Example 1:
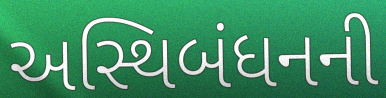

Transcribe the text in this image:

અસ્થિબંધનની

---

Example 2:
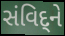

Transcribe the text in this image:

સંવિદ્‌ને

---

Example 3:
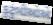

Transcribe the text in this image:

કુટુંબીઓએ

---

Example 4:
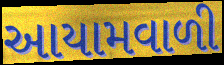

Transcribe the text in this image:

આયામવાળી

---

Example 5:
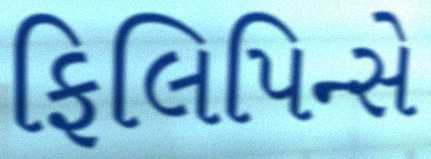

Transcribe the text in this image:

ફિલિપિન્સે